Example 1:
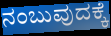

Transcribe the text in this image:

ನಂಬುವುದಕ್ಕೆ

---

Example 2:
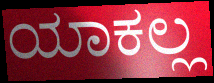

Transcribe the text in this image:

ಯಾಕಲ್ಲ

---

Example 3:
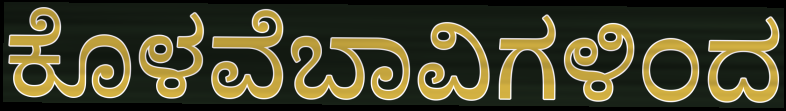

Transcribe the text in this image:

ಕೊಳವೆಬಾವಿಗಳಿಂದ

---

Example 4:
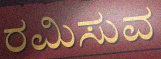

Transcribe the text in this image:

ರಮಿಸುವ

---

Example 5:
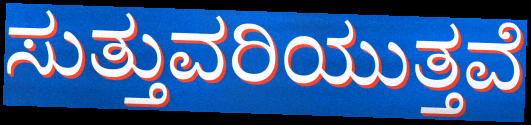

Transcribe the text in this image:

ಸುತ್ತುವರಿಯುತ್ತವೆ